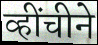
व्हींचीने